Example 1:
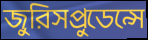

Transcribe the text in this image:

জুরিসপ্রুডেন্সে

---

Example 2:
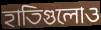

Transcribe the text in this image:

হাতিগুলোও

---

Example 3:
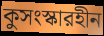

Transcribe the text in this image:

কুসংস্কারহীন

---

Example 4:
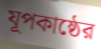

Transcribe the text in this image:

যূপকাষ্ঠের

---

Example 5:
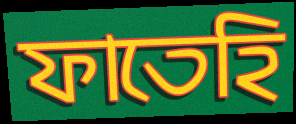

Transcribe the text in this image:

ফাতেহি